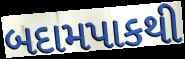
બદામપાકથી